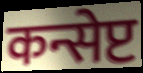
कन्सेप्ट